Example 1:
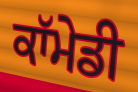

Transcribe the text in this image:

ਕਾੱਮੇਡੀ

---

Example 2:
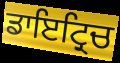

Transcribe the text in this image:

ਡਾਇਟ੍ਰਿਚ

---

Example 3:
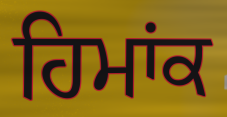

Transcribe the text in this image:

ਹਿਮਾਂਕ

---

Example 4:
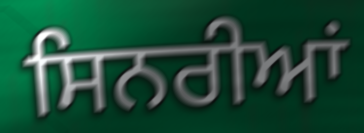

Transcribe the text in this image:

ਸਿਨਰੀਆਂ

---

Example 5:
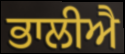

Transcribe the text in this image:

ਭਾਲੀਐ